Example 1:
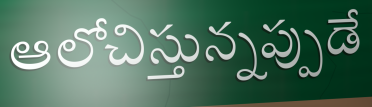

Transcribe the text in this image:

ఆలోచిస్తున్నప్పుడే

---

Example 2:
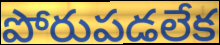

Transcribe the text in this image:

పోరుపడలేక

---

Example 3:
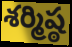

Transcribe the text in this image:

శర్మిష్ఠ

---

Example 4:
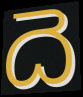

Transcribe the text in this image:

దె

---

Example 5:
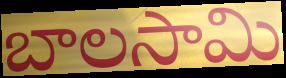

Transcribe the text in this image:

బాలసామి